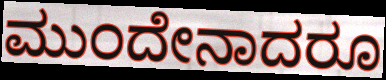
ಮುಂದೇನಾದರೂ